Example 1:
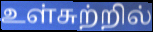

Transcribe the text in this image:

உள்சுற்றில்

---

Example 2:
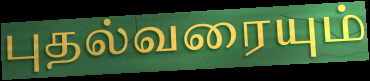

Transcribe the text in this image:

புதல்வரையும்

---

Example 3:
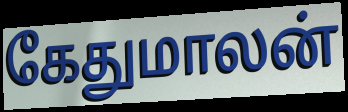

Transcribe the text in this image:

கேதுமாலன்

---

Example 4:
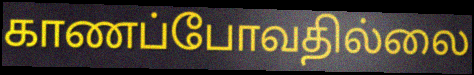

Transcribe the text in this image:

காணப்போவதில்லை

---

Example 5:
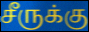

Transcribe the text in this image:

சீருக்கு